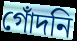
গোঁদনি